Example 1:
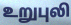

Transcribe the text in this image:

உறுபுலி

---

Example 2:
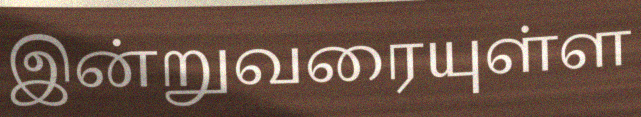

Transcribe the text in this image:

இன்றுவரையுள்ள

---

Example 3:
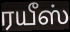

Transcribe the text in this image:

ரயீஸ்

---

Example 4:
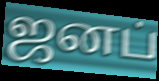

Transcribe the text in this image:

ஜனப்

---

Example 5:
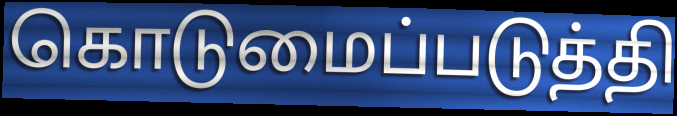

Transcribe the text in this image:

கொடுமைப்படுத்தி